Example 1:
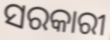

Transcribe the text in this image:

ସରକାରୀ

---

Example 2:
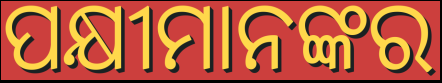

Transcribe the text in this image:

ପକ୍ଷୀମାନଙ୍କର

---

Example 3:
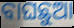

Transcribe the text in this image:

ବାଘଛୁଆ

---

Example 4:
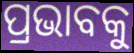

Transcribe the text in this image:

ପ୍ରଭାବକୁ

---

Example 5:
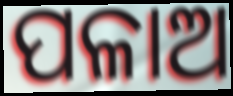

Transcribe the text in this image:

ପଳାଅ